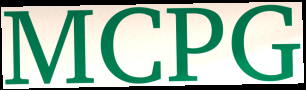
MCPG